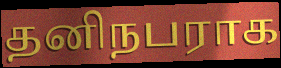
தனிநபராக